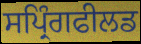
ਸਪ੍ਰਿੰਗਫੀਲਡ